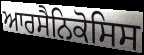
ਆਰਸੈਨਿਕੋਸਿਸ